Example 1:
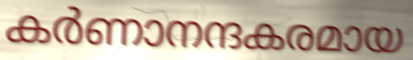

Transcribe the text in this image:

കർണാനന്ദകരമായ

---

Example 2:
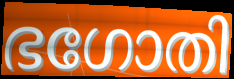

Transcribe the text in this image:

ഭഗോതി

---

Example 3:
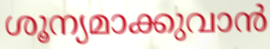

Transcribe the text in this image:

ശൂന്യമാക്കുവാൻ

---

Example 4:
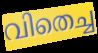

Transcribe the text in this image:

വിതെച്ച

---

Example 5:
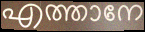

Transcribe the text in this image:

എത്താനേ